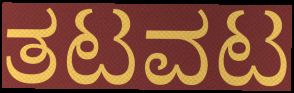
ತಟವಟ